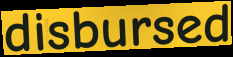
disbursed